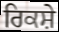
ਰਿਕਸ਼ੇ